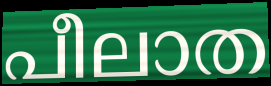
പീലാത